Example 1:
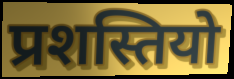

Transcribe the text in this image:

प्रशस्तियो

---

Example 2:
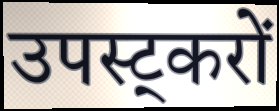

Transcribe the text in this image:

उपस्ट्करों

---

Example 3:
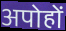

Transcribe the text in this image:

अपोहों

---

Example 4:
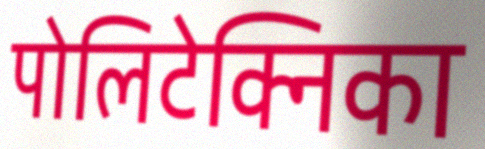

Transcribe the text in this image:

पोलिटेक्निका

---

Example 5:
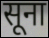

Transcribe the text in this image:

सूना